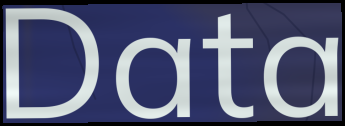
Data